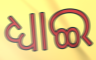
ଧ୍ୟାଇ